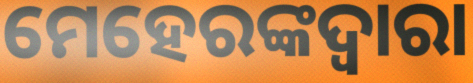
ମେହେରଙ୍କଦ୍ଵାରା